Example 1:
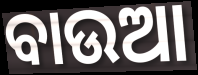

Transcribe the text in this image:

ବାଉଆ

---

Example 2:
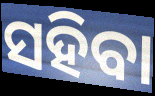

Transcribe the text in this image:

ସହିବା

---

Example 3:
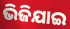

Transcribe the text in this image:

ଭିଜିଯାଇ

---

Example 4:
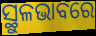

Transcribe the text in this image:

ସ୍ଥୁଳଭାବରେ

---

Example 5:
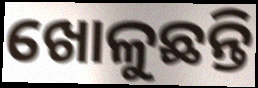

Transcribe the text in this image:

ଖୋଳୁଛନ୍ତି